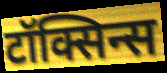
टॉक्सिन्स